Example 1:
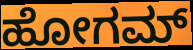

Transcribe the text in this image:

ಹೋಗಮ್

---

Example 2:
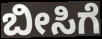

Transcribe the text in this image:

ಬೀಸಿಗೆ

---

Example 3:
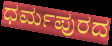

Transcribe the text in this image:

ಧರ್ಮಪುರದ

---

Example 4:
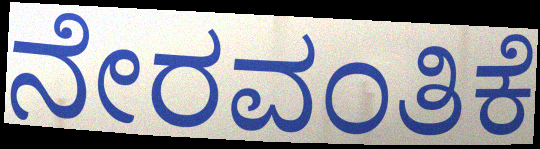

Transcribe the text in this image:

ನೇರವಂತಿಕೆ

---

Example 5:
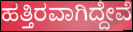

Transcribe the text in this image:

ಹತ್ತಿರವಾಗಿದ್ದೇವೆ